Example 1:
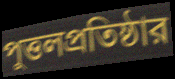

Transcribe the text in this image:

পুত্তলপ্রতিষ্ঠার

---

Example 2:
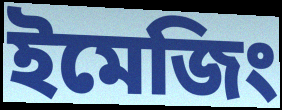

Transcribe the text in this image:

ইমেজিং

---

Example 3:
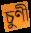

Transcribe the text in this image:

চুণী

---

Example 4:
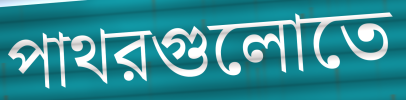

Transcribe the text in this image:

পাথরগুলোতে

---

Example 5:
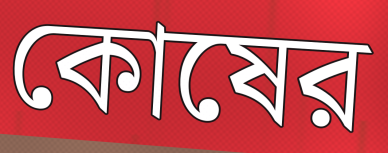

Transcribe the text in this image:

কোষের